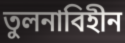
তুলনাবিহীন